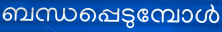
ബന്ധപ്പെടുമ്പോൾ